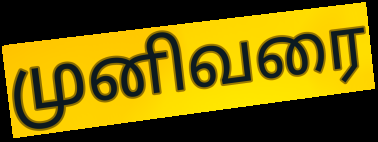
முனிவரை